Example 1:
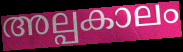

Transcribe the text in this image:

അല്പകാലം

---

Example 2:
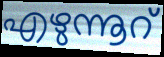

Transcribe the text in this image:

എഴുന്നൂറ്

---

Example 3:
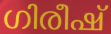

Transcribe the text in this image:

ഗിരീഷ്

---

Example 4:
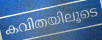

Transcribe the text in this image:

കവിതയിലൂടെ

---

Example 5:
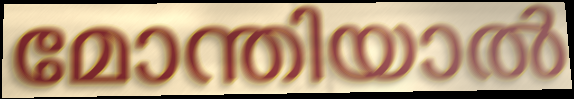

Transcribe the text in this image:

മോന്തിയാൽ